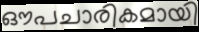
ഔപചാരികമായി